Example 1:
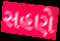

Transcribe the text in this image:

સહણે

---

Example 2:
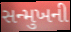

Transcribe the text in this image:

સન્મુખની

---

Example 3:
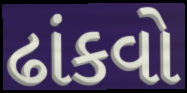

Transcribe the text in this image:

ઢાંકવો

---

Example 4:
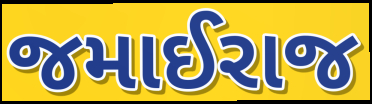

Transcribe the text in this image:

જમાઈરાજ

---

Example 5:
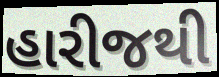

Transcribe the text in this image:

હારીજથી